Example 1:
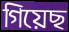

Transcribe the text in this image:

গিয়েছ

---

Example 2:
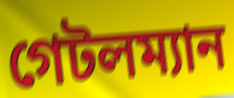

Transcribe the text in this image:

গেটলম্যান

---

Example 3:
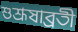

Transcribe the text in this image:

শুশ্রূষাব্রতী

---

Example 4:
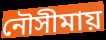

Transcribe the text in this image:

নৌসীমায়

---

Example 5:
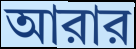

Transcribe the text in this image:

আরার